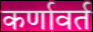
कर्णावर्त